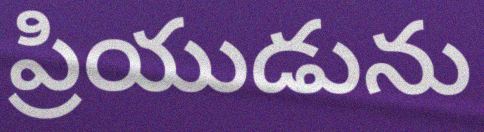
ప్రియుడును